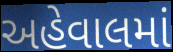
અહેવાલમાં